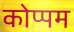
कोप्पम